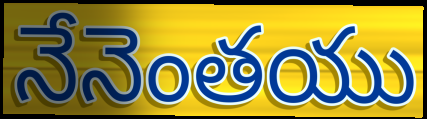
నేనెంతయు